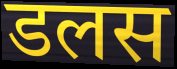
डलस